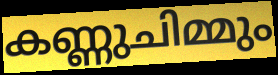
കണ്ണുചിമ്മും